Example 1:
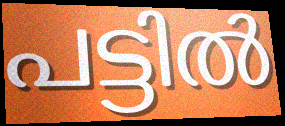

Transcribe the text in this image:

പട്ടിൽ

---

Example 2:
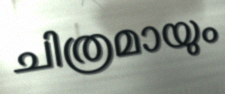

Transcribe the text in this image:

ചിത്രമായും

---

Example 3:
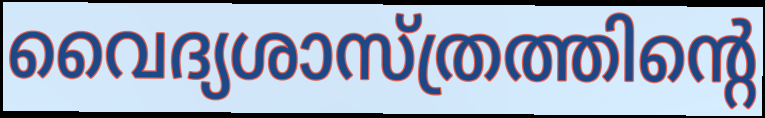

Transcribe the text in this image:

വൈദ്യശാസ്ത്രത്തിന്റെ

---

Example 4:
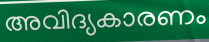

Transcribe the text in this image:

അവിദ്യകാരണം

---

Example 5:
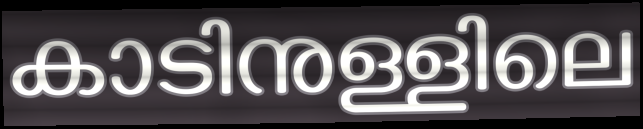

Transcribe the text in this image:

കാടിനുള്ളിലെ